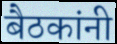
बैठकांनी